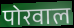
पोरवाल